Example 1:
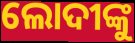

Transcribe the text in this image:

ଲୋଦୀଙ୍କୁ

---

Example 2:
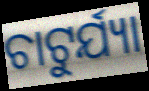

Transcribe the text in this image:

ଚାଟୁର୍ଯ୍ୟା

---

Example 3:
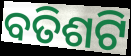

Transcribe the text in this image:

ବତିଶଟି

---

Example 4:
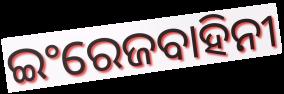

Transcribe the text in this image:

ଇଂରେଜବାହିନୀ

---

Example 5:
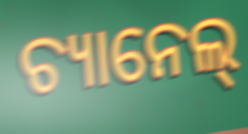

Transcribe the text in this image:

ଚ୍ୟାନେଲ୍